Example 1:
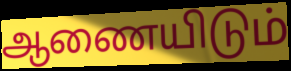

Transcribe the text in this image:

ஆணையிடும்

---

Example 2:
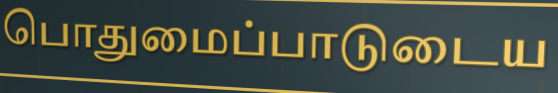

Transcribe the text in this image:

பொதுமைப்பாடுடைய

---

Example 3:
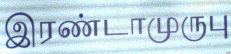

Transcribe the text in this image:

இரண்டாமுருபு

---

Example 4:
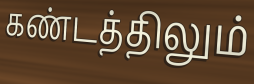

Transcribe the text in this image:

கண்டத்திலும்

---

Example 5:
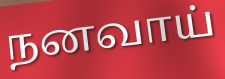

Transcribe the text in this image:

நனவாய்